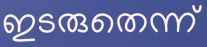
ഇടരുതെന്ന്